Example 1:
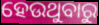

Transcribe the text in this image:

ହେଉଥୁବାରୁ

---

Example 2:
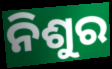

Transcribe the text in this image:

ନିଶୁର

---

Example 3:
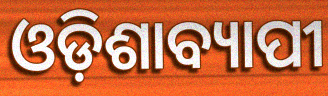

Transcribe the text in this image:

ଓଡ଼ିଶାବ୍ୟାପୀ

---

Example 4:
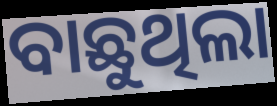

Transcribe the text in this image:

ବାଛୁଥିଲା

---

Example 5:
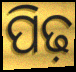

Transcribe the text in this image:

ପିଢ଼